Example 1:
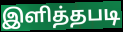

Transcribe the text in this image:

இளித்தபடி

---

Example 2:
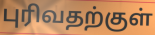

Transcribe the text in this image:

புரிவதற்குள்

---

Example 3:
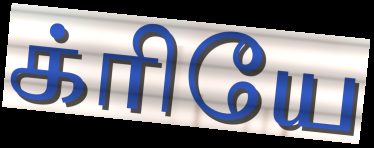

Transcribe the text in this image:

க்ரியே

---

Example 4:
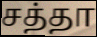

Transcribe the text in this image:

சத்தா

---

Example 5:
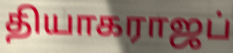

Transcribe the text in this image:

தியாகராஜப்